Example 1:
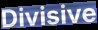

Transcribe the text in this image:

Divisive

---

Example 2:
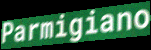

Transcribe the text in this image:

Parmigiano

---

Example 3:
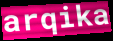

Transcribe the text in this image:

arqika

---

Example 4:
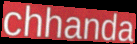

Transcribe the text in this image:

chhanda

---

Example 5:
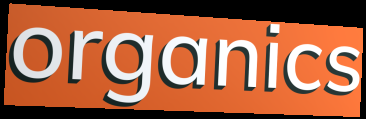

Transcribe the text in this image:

organics